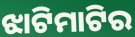
ଝାଟିମାଟିର